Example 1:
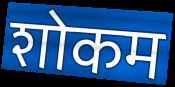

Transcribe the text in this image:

शोकम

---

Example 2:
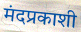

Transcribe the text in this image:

मंदप्रकाशी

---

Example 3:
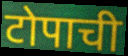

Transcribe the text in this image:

टोपाची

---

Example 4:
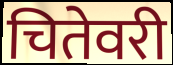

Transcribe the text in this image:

चितेवरी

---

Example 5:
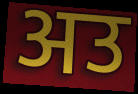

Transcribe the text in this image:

अउ